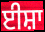
ਈਸ਼ਾ